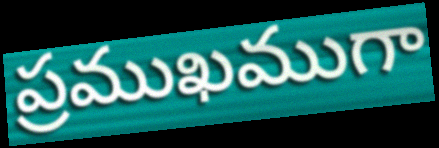
ప్రముఖముగా